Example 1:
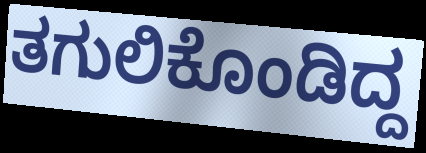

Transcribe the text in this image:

ತಗುಲಿಕೊಂಡಿದ್ದ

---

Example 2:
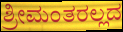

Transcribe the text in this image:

ಶ್ರೀಮಂತರಲ್ಲದ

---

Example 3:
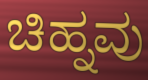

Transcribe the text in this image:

ಚಿಹ್ನವು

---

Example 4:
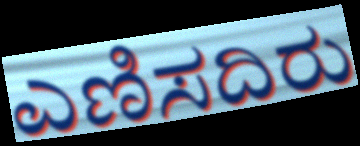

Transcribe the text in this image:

ಎಣಿಸದಿರು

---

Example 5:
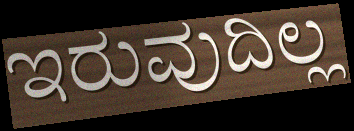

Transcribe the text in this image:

ಇರುವುದಿಲ್ಲ